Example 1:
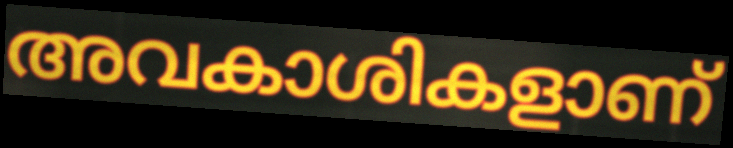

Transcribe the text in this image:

അവകാശികളാണ്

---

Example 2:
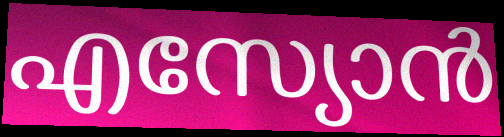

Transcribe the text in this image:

എസ്യോൻ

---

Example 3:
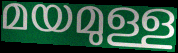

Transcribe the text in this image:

മയമുള്ള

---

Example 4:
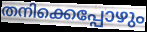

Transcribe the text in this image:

തനിക്കെപ്പോഴും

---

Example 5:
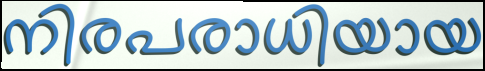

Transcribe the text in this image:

നിരപരാധിയായ